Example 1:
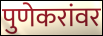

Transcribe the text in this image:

पुणेकरांवर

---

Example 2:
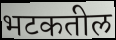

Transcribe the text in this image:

भटकतील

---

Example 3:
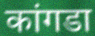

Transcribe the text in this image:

कांगडा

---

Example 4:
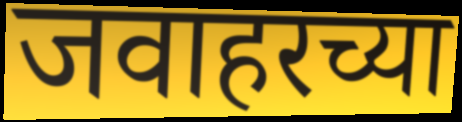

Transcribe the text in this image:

जवाहरच्या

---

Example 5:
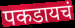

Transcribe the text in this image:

पकडायचं